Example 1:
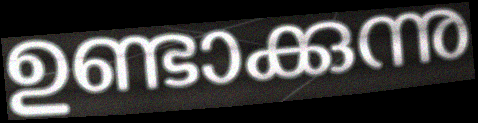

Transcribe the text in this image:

ഉണ്ടാക്കുന്നു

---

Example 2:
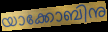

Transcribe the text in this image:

യാക്കോബിനു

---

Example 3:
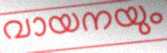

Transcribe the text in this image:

വായനയും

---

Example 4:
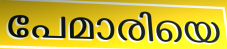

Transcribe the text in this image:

പേമാരിയെ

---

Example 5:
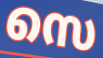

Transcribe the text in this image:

സെ